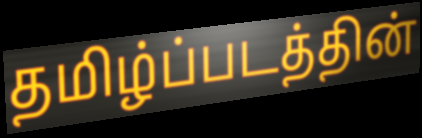
தமிழ்ப்படத்தின்